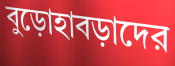
বুড়োহাবড়াদের